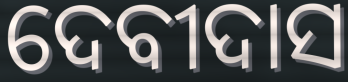
ଦେବୀଦାସ